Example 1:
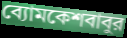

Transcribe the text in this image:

ব্যোমকেশবাবুর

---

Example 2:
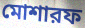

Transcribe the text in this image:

মোশারফ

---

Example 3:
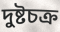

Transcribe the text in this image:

দুষ্টচক্র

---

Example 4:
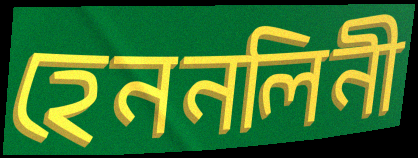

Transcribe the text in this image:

হেননলিনী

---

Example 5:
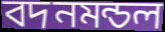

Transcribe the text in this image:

বদনমন্ডল